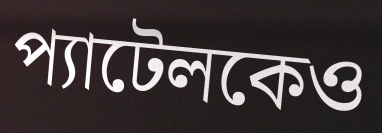
প্যাটেলকেও